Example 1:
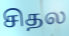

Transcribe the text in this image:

சிதல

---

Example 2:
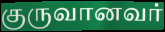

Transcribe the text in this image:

குருவானவர்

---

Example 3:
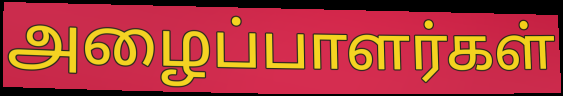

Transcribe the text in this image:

அழைப்பாளர்கள்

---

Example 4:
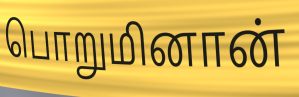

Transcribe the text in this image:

பொறுமினான்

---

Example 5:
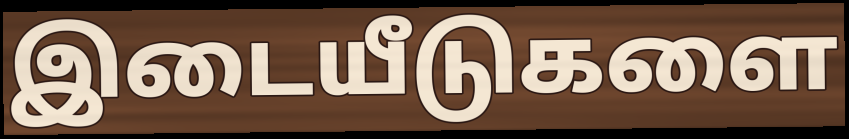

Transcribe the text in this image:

இடையீடுகளை